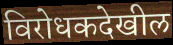
विरोधकदेखील